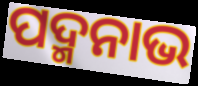
ପଦ୍ମନାଭ